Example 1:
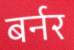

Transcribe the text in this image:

बर्नर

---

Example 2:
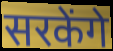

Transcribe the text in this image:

सरकेंगे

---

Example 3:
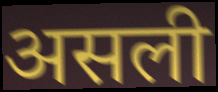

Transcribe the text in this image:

असली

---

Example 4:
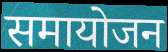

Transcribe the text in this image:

समायोजन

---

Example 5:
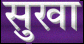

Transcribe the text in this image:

सुखा